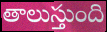
తాలుస్తుంది